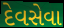
દેવસેવા